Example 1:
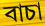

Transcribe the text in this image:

বাচা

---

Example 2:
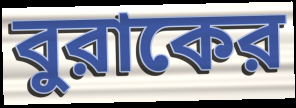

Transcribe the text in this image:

বুরাকের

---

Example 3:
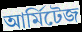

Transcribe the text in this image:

আর্মিটেজ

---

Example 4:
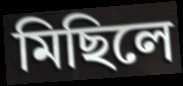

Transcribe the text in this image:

মিছিলে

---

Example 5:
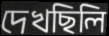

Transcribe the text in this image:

দেখছিলি